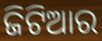
ଜିଟିଆର